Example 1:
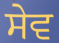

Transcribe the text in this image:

ਸੇਵ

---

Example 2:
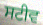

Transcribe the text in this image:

ਸਟੀਵ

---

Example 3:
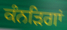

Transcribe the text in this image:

ਕੰਨੜਿਗਾਂ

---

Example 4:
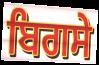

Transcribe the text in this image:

ਬਿਗਸੇ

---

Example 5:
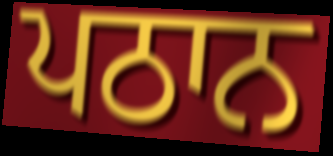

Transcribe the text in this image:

ਪਠਾਨ